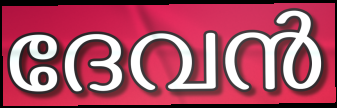
ദേവൻ